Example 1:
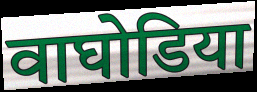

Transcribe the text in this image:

वाघोडिया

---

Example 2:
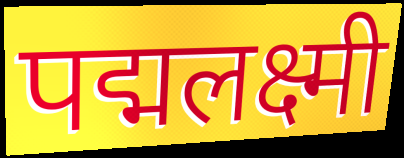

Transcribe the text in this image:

पद्मलक्ष्मी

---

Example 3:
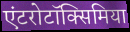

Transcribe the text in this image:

एंटरोटॉक्सिमिया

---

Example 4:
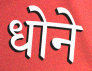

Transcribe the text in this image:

धोने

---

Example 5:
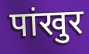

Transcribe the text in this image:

पांखुर